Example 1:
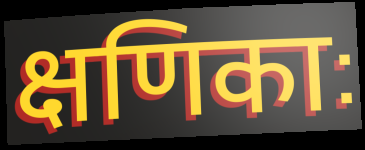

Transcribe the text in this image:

क्षणिकाः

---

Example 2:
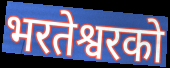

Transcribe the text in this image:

भरतेश्वरको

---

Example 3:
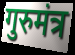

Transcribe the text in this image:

गुरुमंत्र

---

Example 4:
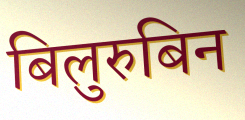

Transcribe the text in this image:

बिलुरुबिन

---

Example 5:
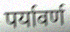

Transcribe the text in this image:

पर्यावर्ण